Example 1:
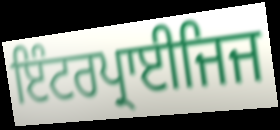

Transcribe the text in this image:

ਇੰਟਰਪ੍ਰਾਈਜਿਜ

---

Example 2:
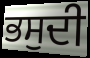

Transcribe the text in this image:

ਭਸੁਦੀ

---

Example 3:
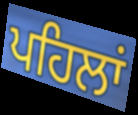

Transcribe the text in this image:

ਪਹਿਲਾਂ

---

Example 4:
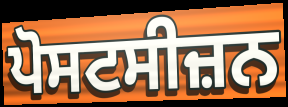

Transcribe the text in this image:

ਪੋਸਟਸੀਜ਼ਨ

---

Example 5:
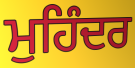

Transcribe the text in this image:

ਮੁਹਿੰਦਰ